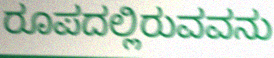
ರೂಪದಲ್ಲಿರುವವನು